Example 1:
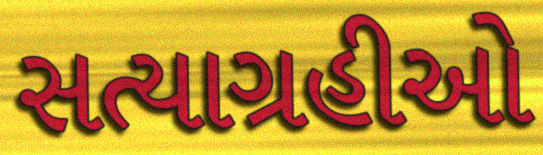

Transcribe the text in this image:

સત્યાગ્રહીઓ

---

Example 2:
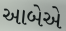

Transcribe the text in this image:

આબેએ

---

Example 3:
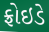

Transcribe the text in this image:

ફ્રોઇડે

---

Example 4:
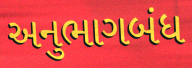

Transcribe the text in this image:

અનુભાગબંધ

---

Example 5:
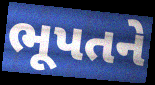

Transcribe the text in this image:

ભૂપતને